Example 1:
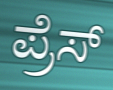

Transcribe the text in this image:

ಪ್ರೆಸ್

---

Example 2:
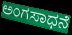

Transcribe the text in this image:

ಅಂಗಸಾಧನೆ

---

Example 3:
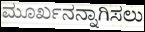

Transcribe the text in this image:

ಮೂರ್ಖನನ್ನಾಗಿಸಲು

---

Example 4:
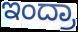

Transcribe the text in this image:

ಇಂದ್ರಾ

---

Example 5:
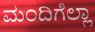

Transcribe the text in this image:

ಮಂದಿಗೆಲ್ಲಾ